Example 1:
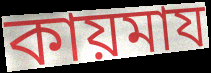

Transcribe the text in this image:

কায়মায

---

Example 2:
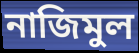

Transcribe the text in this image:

নাজিমুল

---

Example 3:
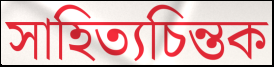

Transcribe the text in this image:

সাহিত্যচিন্তক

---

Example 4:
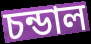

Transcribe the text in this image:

চন্ডাল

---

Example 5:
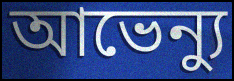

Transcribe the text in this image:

আভেন্যু